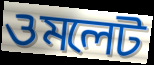
ওমলেট